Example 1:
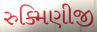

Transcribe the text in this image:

રુક્મિણીજી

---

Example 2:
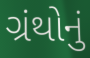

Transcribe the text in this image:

ગ્રંથોનું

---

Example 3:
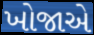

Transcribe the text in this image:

ખોજાએ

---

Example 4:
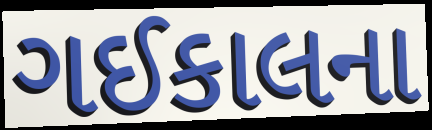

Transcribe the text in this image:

ગઈકાલના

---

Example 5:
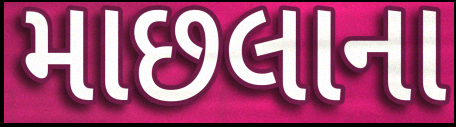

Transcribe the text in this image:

માછલાના